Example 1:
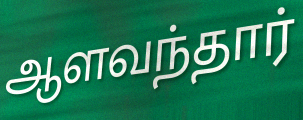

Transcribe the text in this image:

ஆளவந்தார்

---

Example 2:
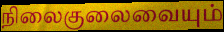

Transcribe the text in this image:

நிலைகுலைவையும்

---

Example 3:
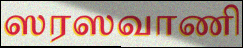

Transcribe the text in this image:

ஸரஸவாணி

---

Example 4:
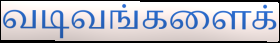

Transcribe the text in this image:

வடிவங்களைக்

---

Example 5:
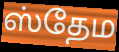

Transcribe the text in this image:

ஸ்தேம